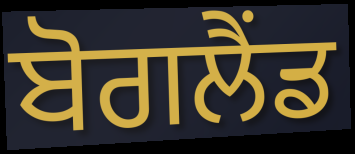
ਬੋਗਲੈਂਡ